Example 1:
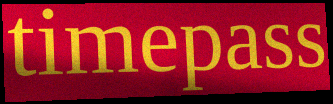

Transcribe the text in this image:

timepass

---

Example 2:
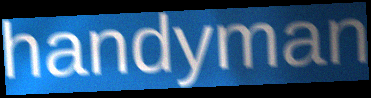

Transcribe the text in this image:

handyman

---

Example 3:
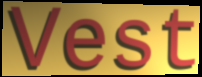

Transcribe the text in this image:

Vest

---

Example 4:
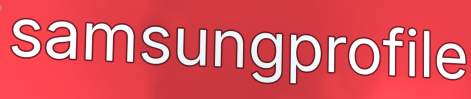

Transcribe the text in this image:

samsungprofile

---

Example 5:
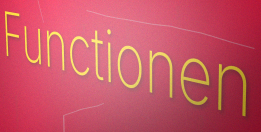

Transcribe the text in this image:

Functionen